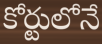
కోర్టులోనే